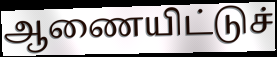
ஆணையிட்டுச்